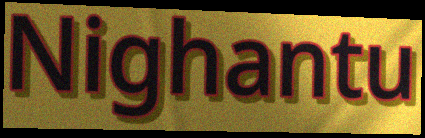
Nighantu